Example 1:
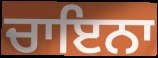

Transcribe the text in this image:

ਚਾਇਨਾ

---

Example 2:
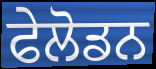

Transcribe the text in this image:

ਫੇਲੋਡਨ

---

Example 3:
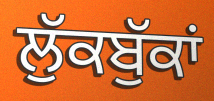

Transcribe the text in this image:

ਲੁੱਕਬੁੱਕਾਂ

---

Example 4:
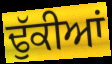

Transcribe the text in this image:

ਢੁੱਕੀਆਂ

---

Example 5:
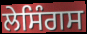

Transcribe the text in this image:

ਲੇਸਿੰਗਸ